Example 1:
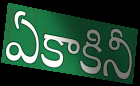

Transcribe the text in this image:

ఏకాకినీ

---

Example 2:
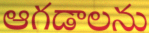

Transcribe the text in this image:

ఆగడాలను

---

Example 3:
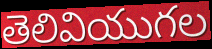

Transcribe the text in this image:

తెలివియుగల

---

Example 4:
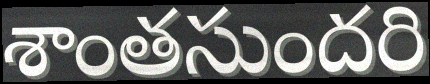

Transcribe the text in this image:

శాంతసుందరి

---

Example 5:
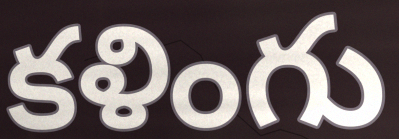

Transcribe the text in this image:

కళింగు